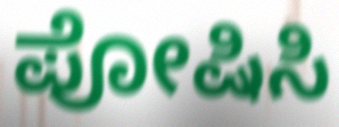
ಪೋಷಿಸಿ